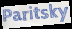
Paritsky